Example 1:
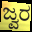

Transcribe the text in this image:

ಜ್ವರ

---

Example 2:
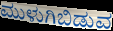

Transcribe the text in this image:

ಮುಳುಗಿಬಿಡುವ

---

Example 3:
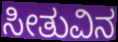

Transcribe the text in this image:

ಸೀತುವಿನ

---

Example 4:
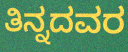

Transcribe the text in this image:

ತಿನ್ನದವರ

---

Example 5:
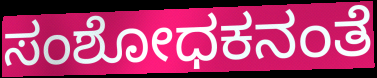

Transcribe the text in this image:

ಸಂಶೋಧಕನಂತೆ